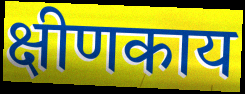
क्षीणकाय